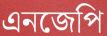
এনজেপি